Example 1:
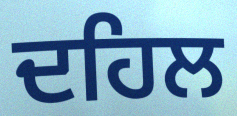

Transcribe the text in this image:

ਦਹਿਲ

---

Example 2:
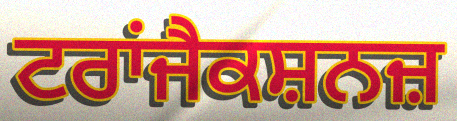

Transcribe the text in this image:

ਟਰਾਂਜੈਕਸ਼ਨਜ਼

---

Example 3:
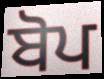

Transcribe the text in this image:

ਬੋਪ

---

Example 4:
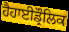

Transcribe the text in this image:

ਹੈਹਾਈਡ੍ਰੌਲਿਕ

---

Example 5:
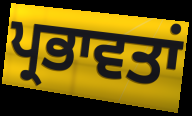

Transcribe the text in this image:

ਪ੍ਰਭਾਵਤਾਂ